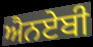
ਐਨਏਬੀ